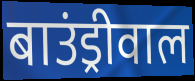
बाउंड्रीवाल